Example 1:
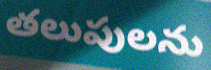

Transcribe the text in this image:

తలుపులను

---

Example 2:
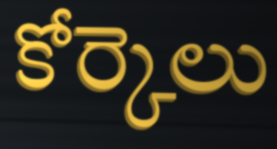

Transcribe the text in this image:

కోర్కెలు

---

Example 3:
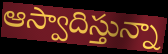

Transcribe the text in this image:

ఆస్వాదిస్తున్నా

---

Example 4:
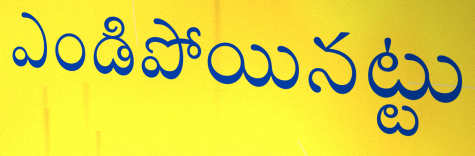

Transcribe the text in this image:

ఎండిపోయినట్టు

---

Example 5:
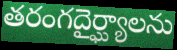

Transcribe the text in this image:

తరంగదైర్ఘ్యాలను